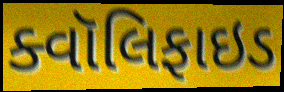
ક્વૉલિફાઇડ